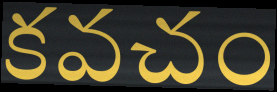
కవచం